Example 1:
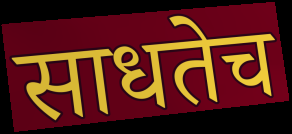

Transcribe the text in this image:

साधतेच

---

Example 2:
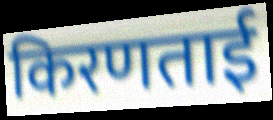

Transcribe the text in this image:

किरणताई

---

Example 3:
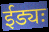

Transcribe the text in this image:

ईड्यः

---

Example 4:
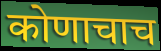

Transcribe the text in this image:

कोणाचाच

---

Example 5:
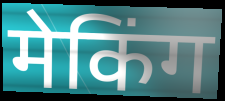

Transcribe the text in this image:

मेकिंग